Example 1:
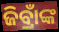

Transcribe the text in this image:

ଜିବ୍ରାଁଙ୍କ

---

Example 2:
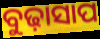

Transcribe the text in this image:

ବୁଢ଼ାସାପ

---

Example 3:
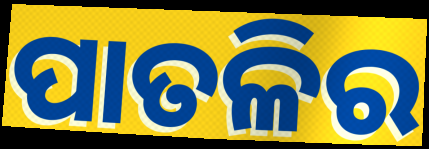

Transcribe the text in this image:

ପାତଳିର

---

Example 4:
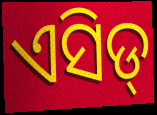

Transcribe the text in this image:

ଏସିଡ୍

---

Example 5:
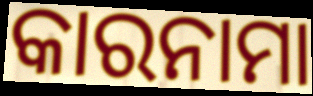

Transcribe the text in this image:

କାରନାମା